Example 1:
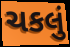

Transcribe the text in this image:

ચકલું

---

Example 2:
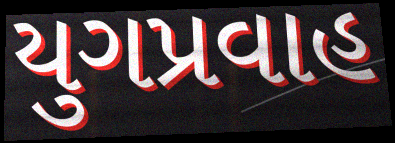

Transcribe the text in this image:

યુગપ્રવાહ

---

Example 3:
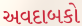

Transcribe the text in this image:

અવદાબકો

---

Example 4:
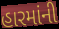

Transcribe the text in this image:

હારમાંની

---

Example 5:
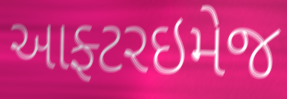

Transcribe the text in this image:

આફ્ટરઇમેજ